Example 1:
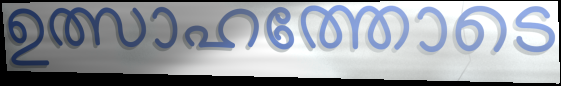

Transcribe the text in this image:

ഉത്സാഹത്തോടെ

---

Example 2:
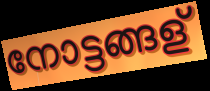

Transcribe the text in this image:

നോട്ടങ്ങള്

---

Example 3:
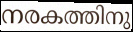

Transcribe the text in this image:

നരകത്തിനു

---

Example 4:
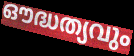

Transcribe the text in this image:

ഔദ്ധത്യവും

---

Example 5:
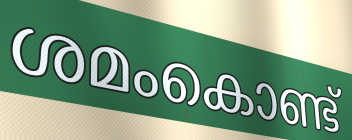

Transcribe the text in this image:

ശമംകൊണ്ട്